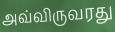
அவ்விருவரது